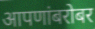
आपणांबरोबर